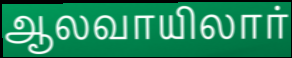
ஆலவாயிலார்